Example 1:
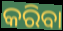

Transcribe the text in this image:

କରିବା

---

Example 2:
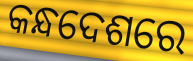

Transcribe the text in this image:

କନ୍ଧଦେଶରେ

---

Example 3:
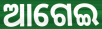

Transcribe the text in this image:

ଆଗେଇ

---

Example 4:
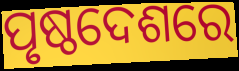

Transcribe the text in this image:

ପୃଷ୍ଠଦେଶରେ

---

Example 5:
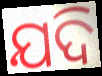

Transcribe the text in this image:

ଯଦି